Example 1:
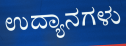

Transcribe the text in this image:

ಉದ್ಯಾನಗಳು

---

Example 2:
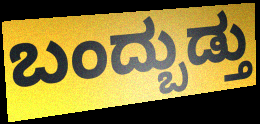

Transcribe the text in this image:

ಬಂದ್ಬುಡ್ತು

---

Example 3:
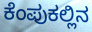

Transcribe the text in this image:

ಕೆಂಪುಕಲ್ಲಿನ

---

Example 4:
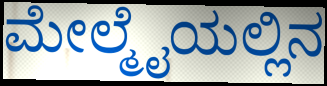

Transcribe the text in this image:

ಮೇಲ್ಮೈಯಲ್ಲಿನ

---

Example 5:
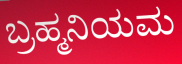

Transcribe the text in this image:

ಬ್ರಹ್ಮನಿಯಮ